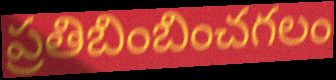
ప్రతిబింబించగలం